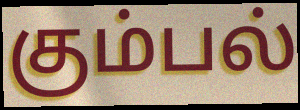
கும்பல்